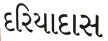
દરિયાદાસ